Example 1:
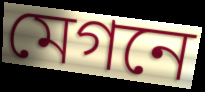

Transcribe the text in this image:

মেগনে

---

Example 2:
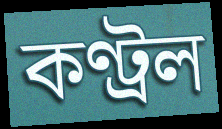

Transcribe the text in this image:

কণ্ট্ৰল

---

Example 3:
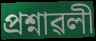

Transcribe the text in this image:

প্ৰশ্নাৱলী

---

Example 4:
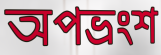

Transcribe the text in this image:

অপভ্ৰংশ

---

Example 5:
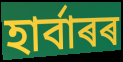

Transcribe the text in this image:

হাৰ্বাৰৰ